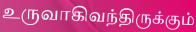
உருவாகிவந்திருக்கும்